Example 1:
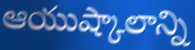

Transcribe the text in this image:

ఆయుష్కాలాన్ని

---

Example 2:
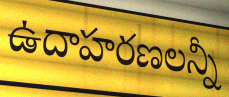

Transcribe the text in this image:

ఉదాహరణలన్నీ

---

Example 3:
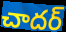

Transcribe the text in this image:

చాదర్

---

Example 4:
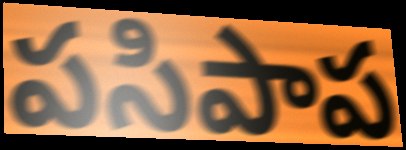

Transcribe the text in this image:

పసిపాప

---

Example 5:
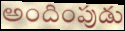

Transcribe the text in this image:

అందింపుడు